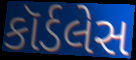
કૉર્ડલેસ